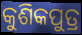
କୁଶିକପୁତ୍ର